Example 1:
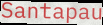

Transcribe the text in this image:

Santapau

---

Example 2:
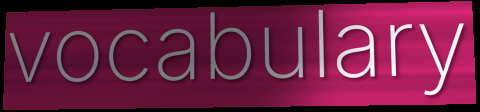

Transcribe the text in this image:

vocabulary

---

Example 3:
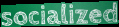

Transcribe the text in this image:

socialized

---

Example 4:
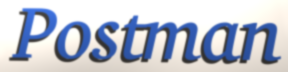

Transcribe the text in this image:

Postman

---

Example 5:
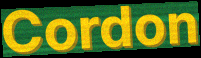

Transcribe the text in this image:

Cordon